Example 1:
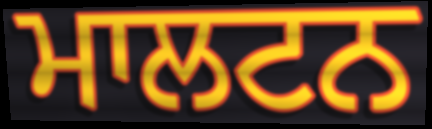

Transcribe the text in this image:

ਮਾਲਟਨ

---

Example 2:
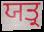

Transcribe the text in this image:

ਯਤ੍ਰ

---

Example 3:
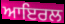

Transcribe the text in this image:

ਆਇਰਲ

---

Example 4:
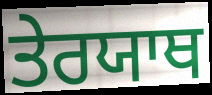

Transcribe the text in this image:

ਤੇਰਯਾਥ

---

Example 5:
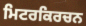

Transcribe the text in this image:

ਮਿਟਰਕਿਰਚਨ